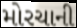
મોરચાની